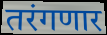
तरंगणार